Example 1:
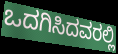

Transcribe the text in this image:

ಒದಗಿಸಿದವರಲ್ಲಿ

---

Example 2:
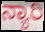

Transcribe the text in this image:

ನ್ಯಾರಿ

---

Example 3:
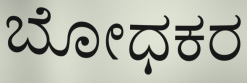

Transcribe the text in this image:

ಬೋಧಕರ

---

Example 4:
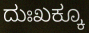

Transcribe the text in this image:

ದುಃಖಕ್ಕೂ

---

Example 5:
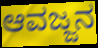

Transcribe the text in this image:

ಆವಜ್ಜನ